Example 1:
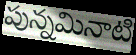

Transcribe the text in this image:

పున్నమినాటి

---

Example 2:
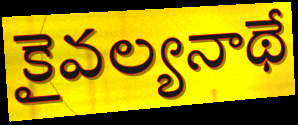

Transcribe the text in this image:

కైవల్యనాథే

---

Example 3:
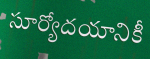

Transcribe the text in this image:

సూర్యోదయానికీ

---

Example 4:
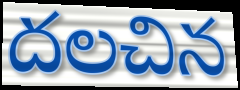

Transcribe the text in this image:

దలచిన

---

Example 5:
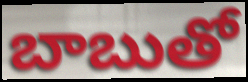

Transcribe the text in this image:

బాబుతో